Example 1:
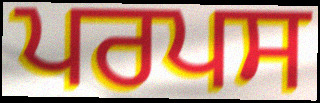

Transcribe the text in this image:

ਪਰਪਸ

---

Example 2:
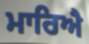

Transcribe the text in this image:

ਮਾਰਿਐ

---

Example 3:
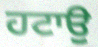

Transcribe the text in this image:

ਹਟਾਉ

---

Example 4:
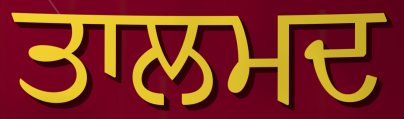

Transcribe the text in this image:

ਤਾਲਮਦ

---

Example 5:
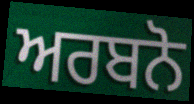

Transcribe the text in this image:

ਅਰਬਨੋ